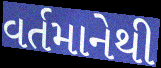
વર્તમાનેથી